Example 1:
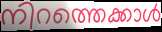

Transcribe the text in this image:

നിറത്തെക്കാൾ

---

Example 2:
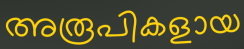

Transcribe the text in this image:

അരൂപികളായ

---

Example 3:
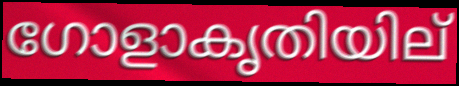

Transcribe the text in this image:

ഗോളാകൃതിയില്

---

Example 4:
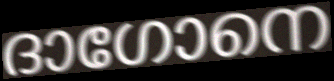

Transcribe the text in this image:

ദാഗോനെ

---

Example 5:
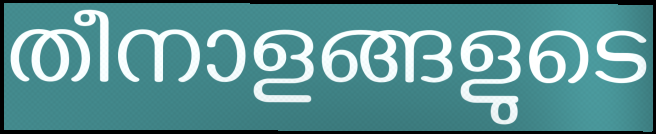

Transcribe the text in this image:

തീനാളങ്ങളുടെ